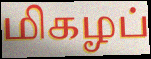
மிகழப்